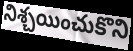
నిశ్చయించుకొని